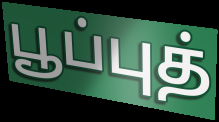
பூப்புத்